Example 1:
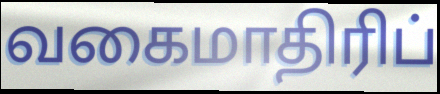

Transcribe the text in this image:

வகைமாதிரிப்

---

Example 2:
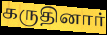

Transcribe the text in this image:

கருதினார்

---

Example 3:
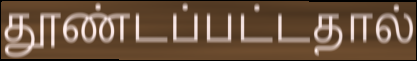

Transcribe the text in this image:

தூண்டப்பட்டதால்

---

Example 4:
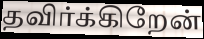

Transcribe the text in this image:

தவிர்க்கிறேன்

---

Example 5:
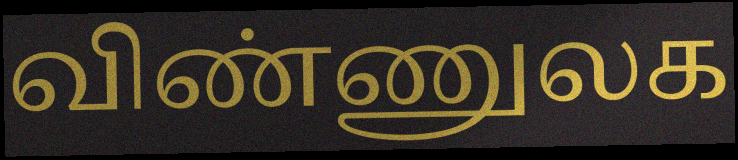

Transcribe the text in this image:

விண்ணுலக